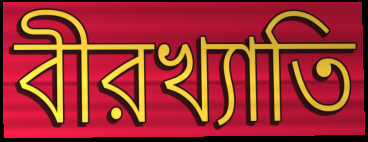
বীরখ্যাতি